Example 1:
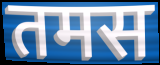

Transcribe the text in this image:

तमस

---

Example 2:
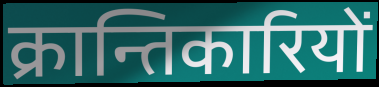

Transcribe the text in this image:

क्रान्तिकारियों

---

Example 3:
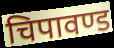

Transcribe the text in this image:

चिपावण्ड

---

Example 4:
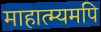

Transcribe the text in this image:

माहात्म्यमपि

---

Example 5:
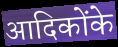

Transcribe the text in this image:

आदिकोंके